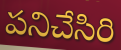
పనిచేసిరి